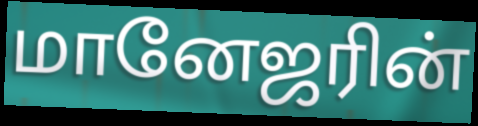
மானேஜரின்